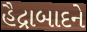
હૈદ્રાબાદને